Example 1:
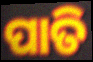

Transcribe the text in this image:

ପାତି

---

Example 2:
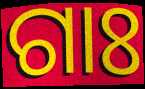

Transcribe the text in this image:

ଗାଃ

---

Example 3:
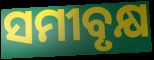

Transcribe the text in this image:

ସମୀବୃକ୍ଷ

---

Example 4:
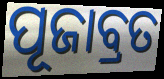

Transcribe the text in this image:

ପୂଜାବ୍ରତ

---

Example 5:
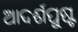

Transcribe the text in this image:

ଆଦର୍ଶପୁଷ୍ଟ